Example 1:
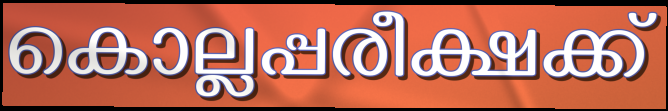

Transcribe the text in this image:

കൊല്ലപ്പരീക്ഷക്ക്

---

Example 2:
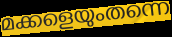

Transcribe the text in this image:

മക്കളെയുംതന്നെ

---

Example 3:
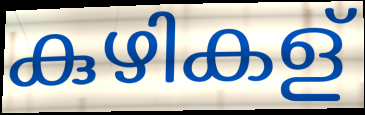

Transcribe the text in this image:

കുഴികള്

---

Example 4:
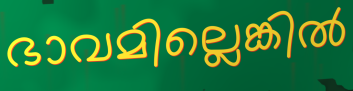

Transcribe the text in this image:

ഭാവമില്ലെങ്കിൽ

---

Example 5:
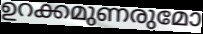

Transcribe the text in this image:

ഉറക്കമുണരുമോ